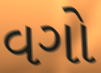
વગો